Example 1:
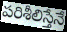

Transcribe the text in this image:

పరిశీలిస్తేనే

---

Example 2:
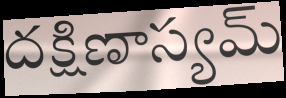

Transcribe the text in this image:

దక్షిణాస్యమ్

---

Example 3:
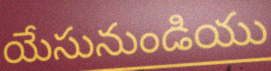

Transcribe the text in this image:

యేసునుండియు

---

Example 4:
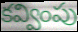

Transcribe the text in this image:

కవ్వింపు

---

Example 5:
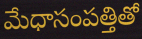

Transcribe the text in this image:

మేధాసంపత్తితో